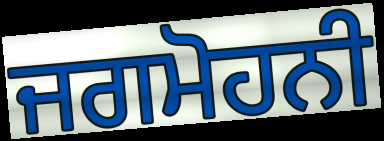
ਜਗਮੋਹਨੀ